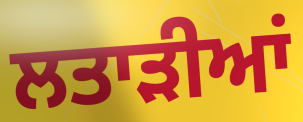
ਲਤਾੜੀਆਂ